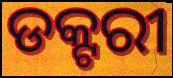
ଡକ୍ଟରୀ